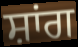
ਸ਼ਾਂਗ